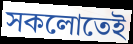
সকলোতেই